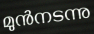
മുൻനടന്നു